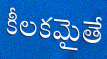
కీలకమైతే